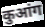
कुआंग